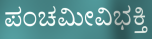
ಪಂಚಮೀವಿಭಕ್ತಿ